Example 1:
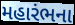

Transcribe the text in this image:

મહારંભના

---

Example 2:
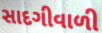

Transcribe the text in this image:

સાદગીવાળી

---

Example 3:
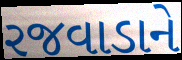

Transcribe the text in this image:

રજવાડાને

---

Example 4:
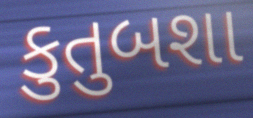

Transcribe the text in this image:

કુતુબશા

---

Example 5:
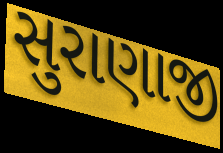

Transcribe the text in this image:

સુરાણાજી